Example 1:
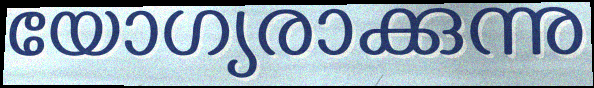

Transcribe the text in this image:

യോഗ്യരാക്കുന്നു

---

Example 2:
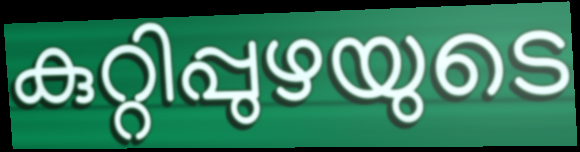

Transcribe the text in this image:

കുറ്റിപ്പുഴയുടെ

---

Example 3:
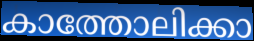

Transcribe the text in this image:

കാത്തോലിക്കാ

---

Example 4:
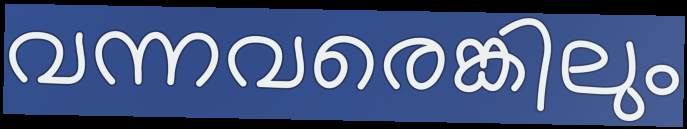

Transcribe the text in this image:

വന്നവരെങ്കിലും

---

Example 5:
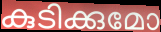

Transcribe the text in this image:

കുടിക്കുമോ